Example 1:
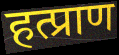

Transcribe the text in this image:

हत्प्राण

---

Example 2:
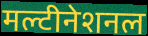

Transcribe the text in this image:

मल्टीनेशनल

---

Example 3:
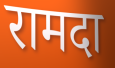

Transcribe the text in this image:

रामदा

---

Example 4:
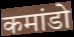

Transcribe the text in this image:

कमांडो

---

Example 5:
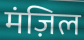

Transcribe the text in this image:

मंज़िल